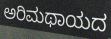
ಅರಿಮಥಾಯದ